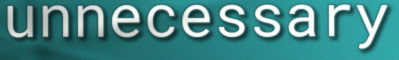
unnecessary